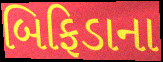
બિફિડાના